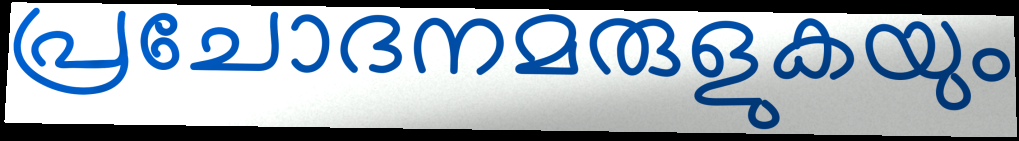
പ്രചോദനമരുളുകയും